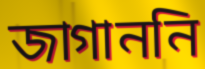
জাগাননি